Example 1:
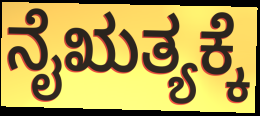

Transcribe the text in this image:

ನೈಋತ್ಯಕ್ಕೆ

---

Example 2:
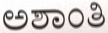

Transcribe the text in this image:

ಅಶಾಂತಿ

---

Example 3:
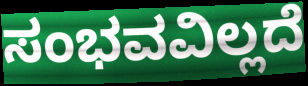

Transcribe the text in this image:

ಸಂಭವವಿಲ್ಲದೆ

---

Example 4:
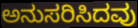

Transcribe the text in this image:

ಅನುಸರಿಸಿದವು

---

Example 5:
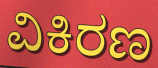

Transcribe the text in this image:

ವಿಕಿರಣ